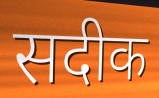
सदीक